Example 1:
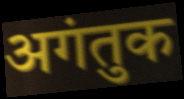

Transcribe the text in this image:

अगंतुक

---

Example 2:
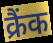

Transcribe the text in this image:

क्रैंक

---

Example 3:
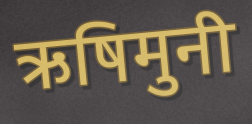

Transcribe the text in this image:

ऋषिमुनी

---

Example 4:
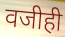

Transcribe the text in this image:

वजीही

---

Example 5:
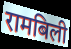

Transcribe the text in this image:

रामबिली